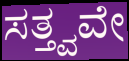
ಸತ್ತ್ವವೇ